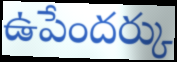
ఉపేందర్కు